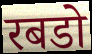
रबडो